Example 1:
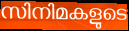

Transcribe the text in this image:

സിനിമകളുടെ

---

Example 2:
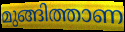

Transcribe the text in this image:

മുങ്ങിത്താണ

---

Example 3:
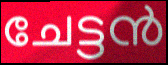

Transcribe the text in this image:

ചേട്ടൻ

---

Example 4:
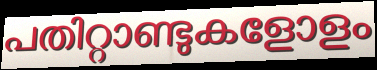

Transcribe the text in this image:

പതിറ്റാണ്ടുകളോളം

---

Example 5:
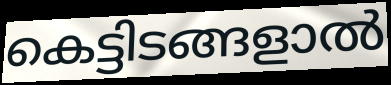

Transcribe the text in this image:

കെട്ടിടങ്ങളാൽ